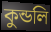
কুন্ডলি